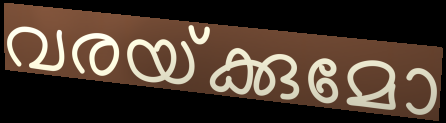
വരയ്‌ക്കുമോ